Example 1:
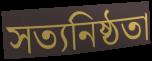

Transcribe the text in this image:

সত্যনিষ্ঠতা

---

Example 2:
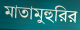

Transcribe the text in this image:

মাতামুহুরির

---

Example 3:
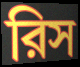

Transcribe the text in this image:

রিস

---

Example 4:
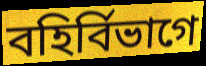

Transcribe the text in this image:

বহির্বিভাগে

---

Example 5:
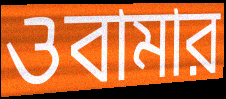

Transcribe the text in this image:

ওবামার